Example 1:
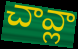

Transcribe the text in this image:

చావ్లా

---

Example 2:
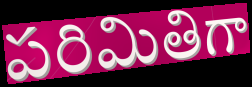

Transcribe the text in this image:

పరిమితిగా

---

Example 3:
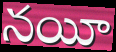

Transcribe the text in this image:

నయీ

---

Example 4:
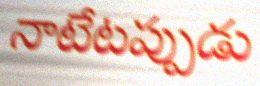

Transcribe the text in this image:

నాటేటప్పుడు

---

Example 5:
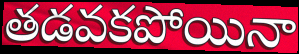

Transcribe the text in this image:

తడవకపోయినా